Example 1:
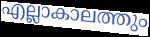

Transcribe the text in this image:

എല്ലാകാലത്തും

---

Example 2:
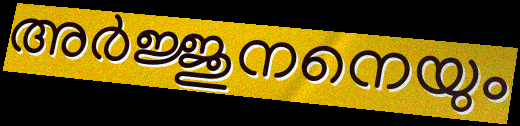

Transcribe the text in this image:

അർജ്ജുനനെയും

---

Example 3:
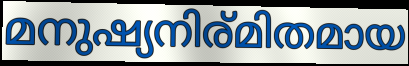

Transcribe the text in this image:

മനുഷ്യനിര്മിതമായ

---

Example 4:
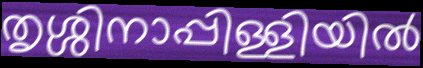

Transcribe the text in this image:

തൃശ്ശിനാപ്പിള്ളിയിൽ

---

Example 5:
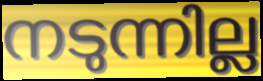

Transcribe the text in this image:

നടുന്നില്ല